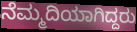
ನೆಮ್ಮದಿಯಾಗಿದ್ದರು